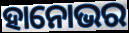
ହାନୋଭର